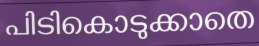
പിടികൊടുക്കാതെ